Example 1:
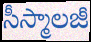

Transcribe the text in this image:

సీస్మాలజీ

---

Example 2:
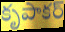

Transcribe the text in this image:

కృపాకర్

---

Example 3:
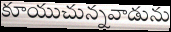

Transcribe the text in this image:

కూయుచున్నవాడును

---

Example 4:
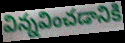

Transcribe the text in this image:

విన్నవించడానికి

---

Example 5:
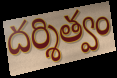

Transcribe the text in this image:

దర్శిత్వం